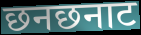
छनछनाट